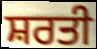
ਸ਼ਰਤੀ